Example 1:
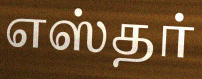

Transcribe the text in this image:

எஸ்தர்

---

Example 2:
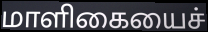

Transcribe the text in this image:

மாளிகையைச்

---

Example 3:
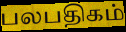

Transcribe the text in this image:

பலபதிகம்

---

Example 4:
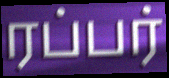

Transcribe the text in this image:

ரப்பர்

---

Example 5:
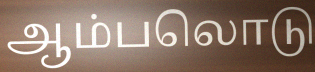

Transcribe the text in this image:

ஆம்பலொடு